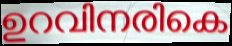
ഉറവിനരികെ